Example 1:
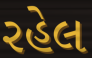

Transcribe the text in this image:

રહેલ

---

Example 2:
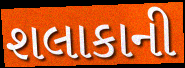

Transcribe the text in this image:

શલાકાની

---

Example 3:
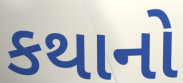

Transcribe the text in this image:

કથાનો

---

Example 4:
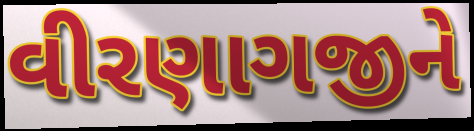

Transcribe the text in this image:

વીરણાગજીને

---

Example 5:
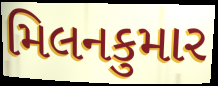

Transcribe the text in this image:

મિલનકુમાર